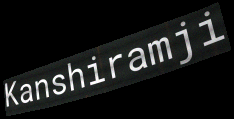
Kanshiramji